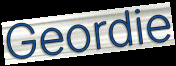
Geordie